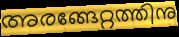
അരങ്ങേറ്റത്തിനു